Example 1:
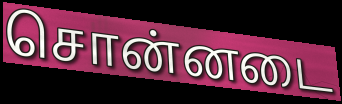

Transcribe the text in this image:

சொன்னடை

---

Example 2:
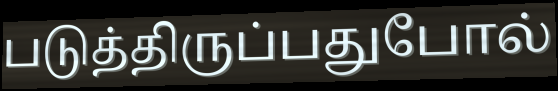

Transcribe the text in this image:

படுத்திருப்பதுபோல்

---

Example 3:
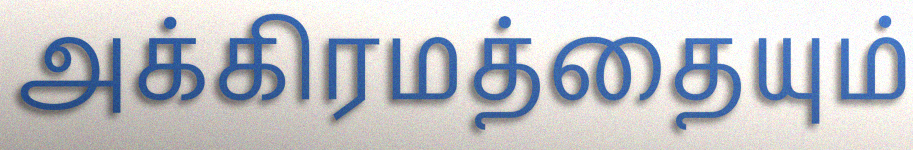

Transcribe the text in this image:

அக்கிரமத்தையும்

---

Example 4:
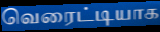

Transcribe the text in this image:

வெரைட்டியாக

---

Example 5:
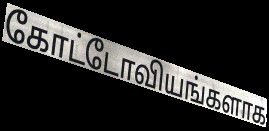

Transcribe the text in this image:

கோட்டோவியங்களாக